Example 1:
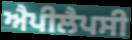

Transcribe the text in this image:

ਐਪੀਲੈਪਸੀ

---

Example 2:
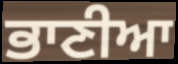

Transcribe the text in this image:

ਭਾਣੀਆ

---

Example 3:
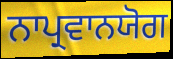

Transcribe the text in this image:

ਨਾਪ੍ਰਵਾਨਯੋਗ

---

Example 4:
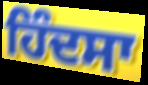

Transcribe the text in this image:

ਹਿੰਦਸਾ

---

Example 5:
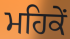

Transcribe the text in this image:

ਮਹਿਕੇਂ